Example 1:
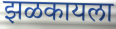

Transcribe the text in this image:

झळकायला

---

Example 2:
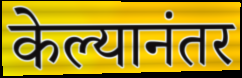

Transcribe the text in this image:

केल्यानंतर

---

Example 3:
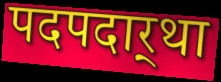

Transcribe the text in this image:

पदपदार्था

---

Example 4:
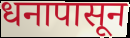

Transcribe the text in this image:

धनापासून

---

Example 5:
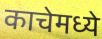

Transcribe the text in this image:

काचेमध्ये